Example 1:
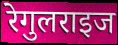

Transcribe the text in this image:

रेगुलराइज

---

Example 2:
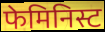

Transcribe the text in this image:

फेमिनिस्ट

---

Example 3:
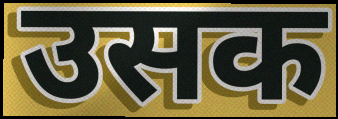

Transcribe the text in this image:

उसक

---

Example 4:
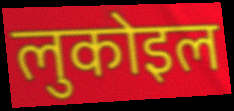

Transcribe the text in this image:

लुकोइल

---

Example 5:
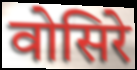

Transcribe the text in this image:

वोसिरे